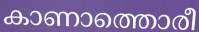
കാണാത്തൊരീ